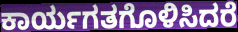
ಕಾರ್ಯಗತಗೊಳಿಸಿದರೆ